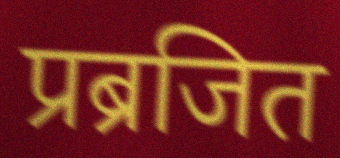
प्रब्रजित